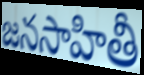
జనసాహితీ